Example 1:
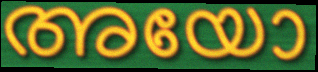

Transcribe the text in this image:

അയോ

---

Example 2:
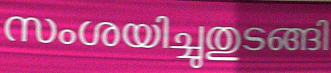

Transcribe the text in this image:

സംശയിച്ചുതുടങ്ങി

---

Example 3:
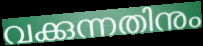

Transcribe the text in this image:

വക്കുന്നതിനും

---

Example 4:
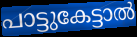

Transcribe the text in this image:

പാട്ടുകേട്ടാൽ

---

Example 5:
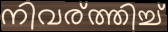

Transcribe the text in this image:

നിവര്ത്തിച്ച്